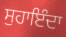
ਸੁਹਾਇੰਦਾ